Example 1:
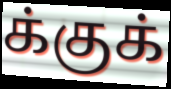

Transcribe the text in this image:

க்குக்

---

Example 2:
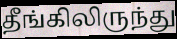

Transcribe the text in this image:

தீங்கிலிருந்து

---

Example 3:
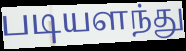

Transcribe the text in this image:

படியளந்து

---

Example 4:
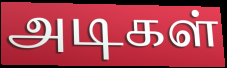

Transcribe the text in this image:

அடிகள்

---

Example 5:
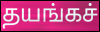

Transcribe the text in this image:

தயங்கச்